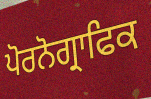
ਪੋਰਨੋਗ੍ਰਾਫਿਕ